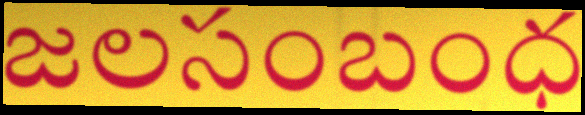
జలసంబంధ